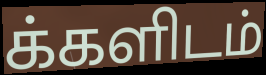
க்களிடம்